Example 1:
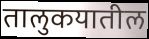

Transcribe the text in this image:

तालुकयातील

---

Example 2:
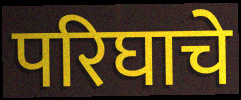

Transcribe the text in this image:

परिघाचे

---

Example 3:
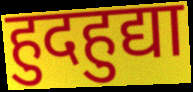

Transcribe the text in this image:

हुदहुद्या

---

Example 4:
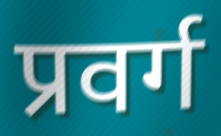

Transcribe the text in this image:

प्रवर्ग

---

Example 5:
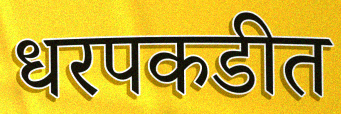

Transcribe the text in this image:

धरपकडीत